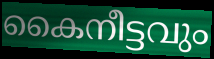
കൈനീട്ടവും